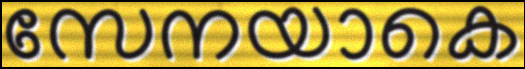
സേനയാകെ